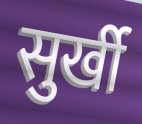
सुर्खी